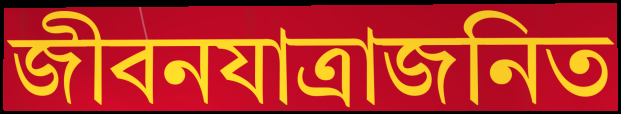
জীবনযাত্রাজনিত